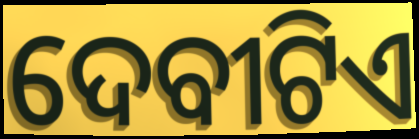
ଦେବୀଟିଏ